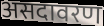
असदावरण